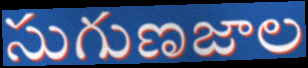
సుగుణజాల